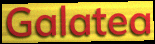
Galatea